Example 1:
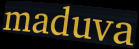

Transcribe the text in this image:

maduva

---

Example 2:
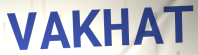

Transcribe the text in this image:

VAKHAT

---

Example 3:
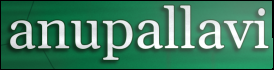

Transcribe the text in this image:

anupallavi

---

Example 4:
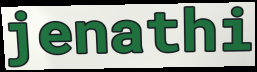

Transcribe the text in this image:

jenathi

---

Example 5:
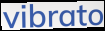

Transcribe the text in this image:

vibrato